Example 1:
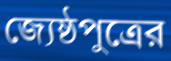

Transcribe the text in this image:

জ্যেষ্ঠপুত্রের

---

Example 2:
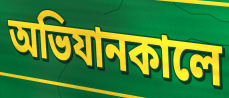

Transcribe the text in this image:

অভিযানকালে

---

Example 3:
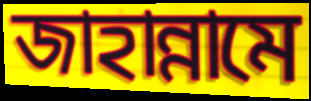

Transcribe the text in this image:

জাহান্নামে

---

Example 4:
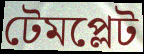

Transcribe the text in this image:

টেমপ্লেট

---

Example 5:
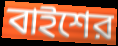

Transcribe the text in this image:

বাইশের